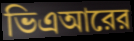
ভিএআরের